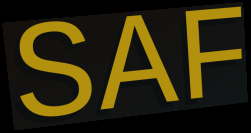
SAF